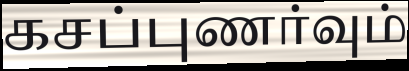
கசப்புணர்வும்